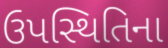
ઉપસ્થિતિના